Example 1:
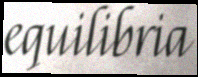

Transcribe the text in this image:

equilibria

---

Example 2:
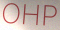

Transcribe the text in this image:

OHP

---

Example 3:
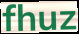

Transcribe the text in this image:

fhuz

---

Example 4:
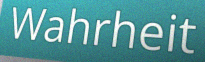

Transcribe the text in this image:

Wahrheit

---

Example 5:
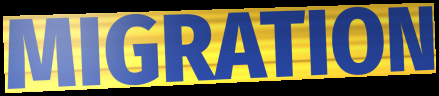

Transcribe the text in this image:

MIGRATION